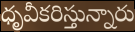
ధృవీకరిస్తున్నారు